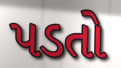
પડતો